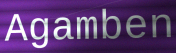
Agamben